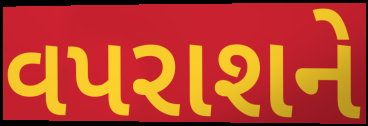
વપરાશને